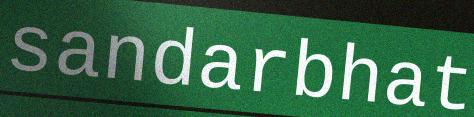
sandarbhat